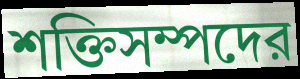
শক্তিসম্পদের